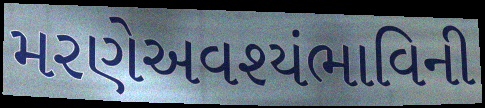
મરણેઅવશ્યંભાવિની